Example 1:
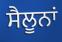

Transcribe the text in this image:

ਸੈਲੂਨਾਂ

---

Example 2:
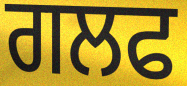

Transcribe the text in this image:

ਗਲਫ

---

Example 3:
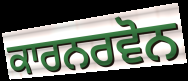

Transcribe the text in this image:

ਕਾਰਨਰਵੋਨ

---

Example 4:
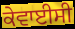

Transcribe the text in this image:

ਕੇਵਾਈਸੀ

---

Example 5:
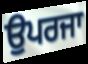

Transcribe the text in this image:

ਉਪਰਜਾ